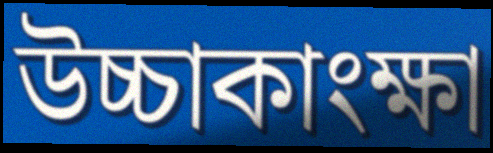
উচ্চাকাংক্ষা